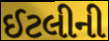
ઈટલીની